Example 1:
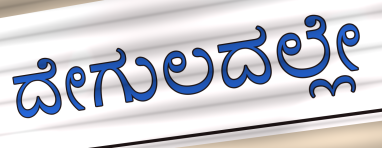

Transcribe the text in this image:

ದೇಗುಲದಲ್ಲೇ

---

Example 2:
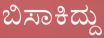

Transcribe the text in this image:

ಬಿಸಾಕಿದ್ದು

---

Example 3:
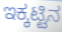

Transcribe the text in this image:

ಇಕ್ಕಟ್ಟಿನ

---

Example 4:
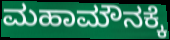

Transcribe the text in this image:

ಮಹಾಮೌನಕ್ಕೆ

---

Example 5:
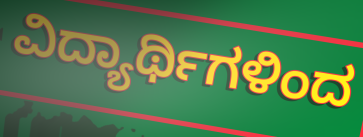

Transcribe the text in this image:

ವಿದ್ಯಾರ್ಥಿಗಳಿಂದ